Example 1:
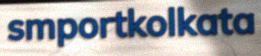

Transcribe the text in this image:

smportkolkata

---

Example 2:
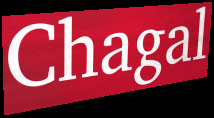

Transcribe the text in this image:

Chagal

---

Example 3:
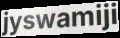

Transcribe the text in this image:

jyswamiji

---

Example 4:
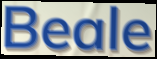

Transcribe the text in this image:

Beale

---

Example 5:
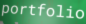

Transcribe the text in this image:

portfolio